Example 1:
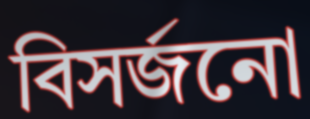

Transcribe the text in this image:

বিসৰ্জনো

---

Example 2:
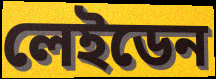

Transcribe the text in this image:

লেইডেন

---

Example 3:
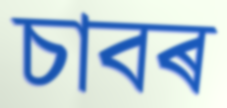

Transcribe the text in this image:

চাবৰ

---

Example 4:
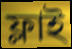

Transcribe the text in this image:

ফ্লাই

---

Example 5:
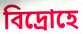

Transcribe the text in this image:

বিদ্ৰোহে